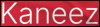
Kaneez